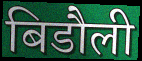
बिडौली